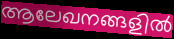
ആലേഖനങ്ങളിൽ